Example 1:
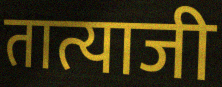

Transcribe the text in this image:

तात्याजी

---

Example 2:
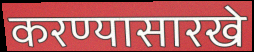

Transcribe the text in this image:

करण्यासारखे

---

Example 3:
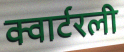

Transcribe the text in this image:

क्वार्टरली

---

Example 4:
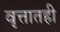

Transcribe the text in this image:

वृत्तातही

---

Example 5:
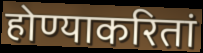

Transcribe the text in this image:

होण्याकरितां